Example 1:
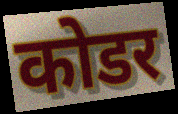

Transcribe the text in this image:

कोडर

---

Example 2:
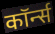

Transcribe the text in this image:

कॉर्न्स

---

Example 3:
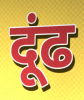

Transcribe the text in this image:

दूंढ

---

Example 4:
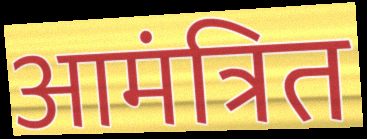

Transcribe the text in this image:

आमंत्रित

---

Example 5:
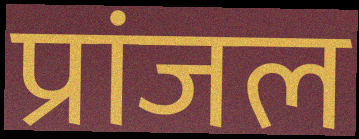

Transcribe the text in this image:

प्रांजल